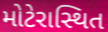
મોટેરાસ્થિત